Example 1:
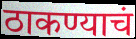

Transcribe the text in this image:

ठाकण्याचं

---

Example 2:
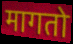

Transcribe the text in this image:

मागतो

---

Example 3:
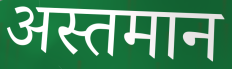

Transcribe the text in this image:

अस्तमान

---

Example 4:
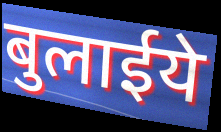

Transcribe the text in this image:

बुलाईये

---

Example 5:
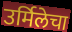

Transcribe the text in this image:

उर्मिलेचा